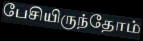
பேசியிருந்தோம்